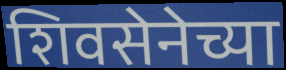
शिवसेनेच्या